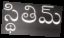
స్థితిమ్